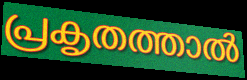
പ്രകൃതത്താൽ